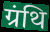
ग्रंथि